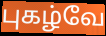
புகழ்வே